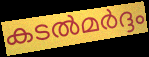
കടൽമർദ്ദം